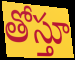
తోస్తూ